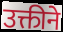
उक्तीने